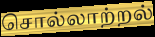
சொல்லாற்றல்